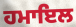
ਹਮਾਇਲ